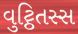
વુટ્ઠિતસ્સ